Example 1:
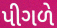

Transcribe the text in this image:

પીગળે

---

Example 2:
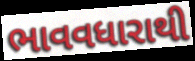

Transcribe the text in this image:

ભાવવધારાથી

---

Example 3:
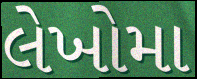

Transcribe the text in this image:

લેખોમા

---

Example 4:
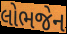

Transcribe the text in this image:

લોભજેન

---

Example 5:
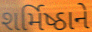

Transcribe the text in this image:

શર્મિષ્ઠાને